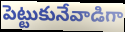
పెట్టుకునేవాడిగా